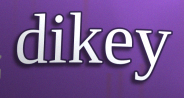
dikey